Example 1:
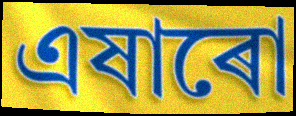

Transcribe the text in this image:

এষাৰো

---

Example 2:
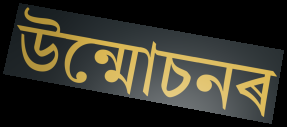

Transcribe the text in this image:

উন্মোচনৰ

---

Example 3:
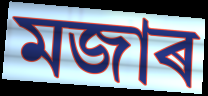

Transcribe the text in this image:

মজাৰ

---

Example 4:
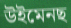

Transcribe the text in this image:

উইমেনছ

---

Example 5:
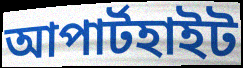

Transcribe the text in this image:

আপাৰ্টহাইট